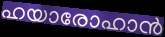
ഹയാരോഹാൻ